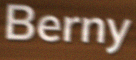
Berny